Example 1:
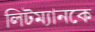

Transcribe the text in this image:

লিটম্যানকে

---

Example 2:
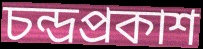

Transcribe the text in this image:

চন্দ্রপ্রকাশ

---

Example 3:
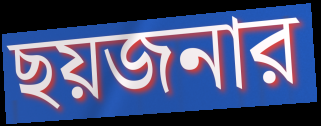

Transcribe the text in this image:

ছয়জনার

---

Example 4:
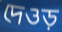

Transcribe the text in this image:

দেওড়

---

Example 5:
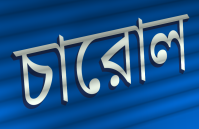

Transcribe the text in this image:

চারোল